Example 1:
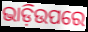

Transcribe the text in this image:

ଭାଡ଼ିଉପରେ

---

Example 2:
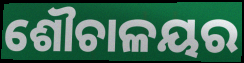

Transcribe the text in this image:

ଶୌଚାଳୟର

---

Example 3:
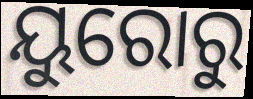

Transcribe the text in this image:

ୟୁରୋରୁ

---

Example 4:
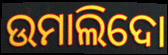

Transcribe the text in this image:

ଉମାଲିଦୋ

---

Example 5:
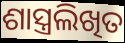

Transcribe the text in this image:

ଶାସ୍ତ୍ରଲିଖିତ